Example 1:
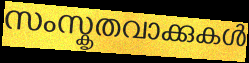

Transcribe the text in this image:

സംസ്കൃതവാക്കുകൾ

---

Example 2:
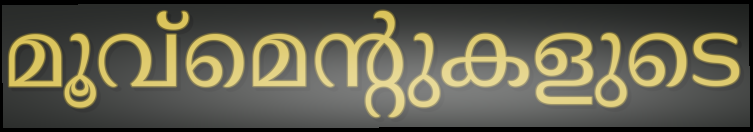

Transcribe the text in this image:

മൂവ്മെന്റുകളുടെ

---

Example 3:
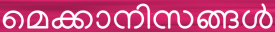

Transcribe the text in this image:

മെക്കാനിസങ്ങൾ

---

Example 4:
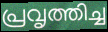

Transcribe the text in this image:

പ്രവൃത്തിച്ച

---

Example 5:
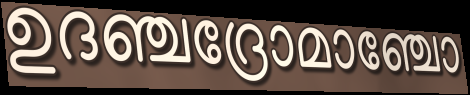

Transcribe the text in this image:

ഉദഞ്ചദ്രോമാഞ്ചോ